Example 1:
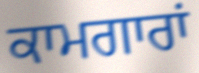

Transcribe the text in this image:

ਕਾਮਗਾਰਾਂ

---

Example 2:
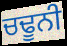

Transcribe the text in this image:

ਚਢੂਨੀ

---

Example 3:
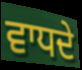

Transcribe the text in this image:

ਵਾਧਦੇ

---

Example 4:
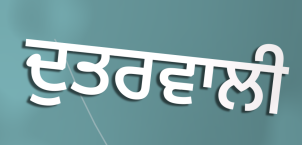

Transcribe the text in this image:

ਦੁਤਰਵਾਲੀ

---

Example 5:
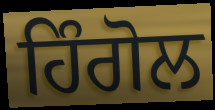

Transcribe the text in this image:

ਹਿੰਗੋਲ